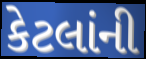
કેટલાંની